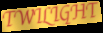
TWILIGHT